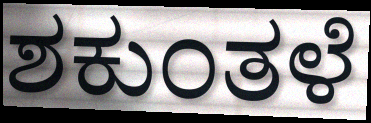
ಶಕುಂತಳೆ